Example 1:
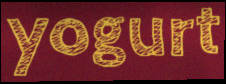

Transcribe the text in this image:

yogurt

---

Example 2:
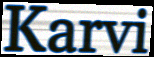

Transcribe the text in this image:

Karvi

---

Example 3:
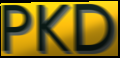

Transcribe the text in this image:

PKD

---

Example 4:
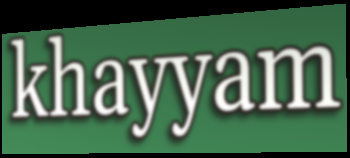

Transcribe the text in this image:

khayyam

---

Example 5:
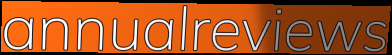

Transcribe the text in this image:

annualreviews